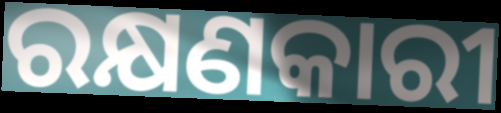
ରକ୍ଷଣକାରୀ